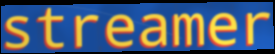
streamer